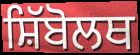
ਸ਼ਿੱਬੋਲਥ